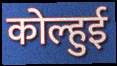
कोल्हुई